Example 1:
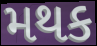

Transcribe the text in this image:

મથક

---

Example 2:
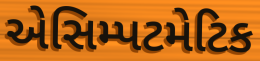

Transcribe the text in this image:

એસિમ્પટમેટિક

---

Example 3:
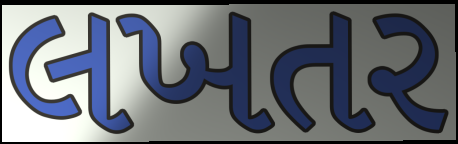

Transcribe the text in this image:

લખતર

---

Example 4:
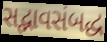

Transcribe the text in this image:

સદ્ભાવસંબદ્ધ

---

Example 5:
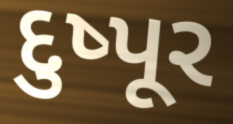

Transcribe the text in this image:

દુષ્પૂર